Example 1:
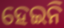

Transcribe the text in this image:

ହେଇନି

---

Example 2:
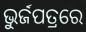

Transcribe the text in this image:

ଭୁର୍ଜପତ୍ରରେ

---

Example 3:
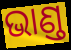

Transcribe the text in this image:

ଭାଣ୍ଡ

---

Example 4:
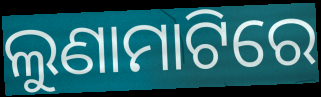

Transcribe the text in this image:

ଲୁଣାମାଟିରେ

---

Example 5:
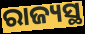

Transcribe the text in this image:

ରାଜ୍ୟସ୍ଥ